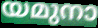
യമുനാ